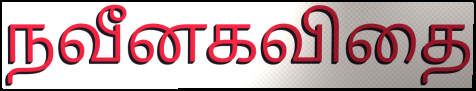
நவீனகவிதை